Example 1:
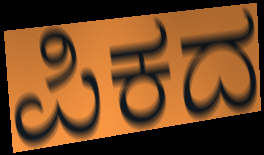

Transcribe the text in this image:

ಪಿಕದ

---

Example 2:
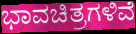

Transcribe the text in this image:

ಭಾವಚಿತ್ರಗಳಿವೆ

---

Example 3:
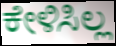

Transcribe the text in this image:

ಕೇಳಿಸಿಲ್ಲ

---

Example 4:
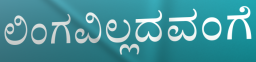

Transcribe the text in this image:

ಲಿಂಗವಿಲ್ಲದವಂಗೆ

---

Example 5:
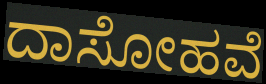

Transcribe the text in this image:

ದಾಸೋಹವೆ